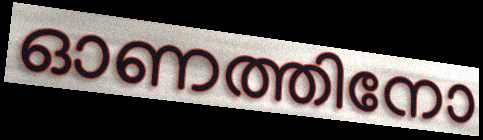
ഓണത്തിനോ